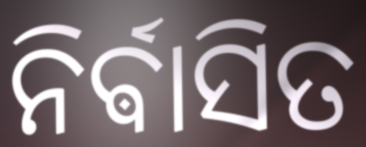
ନିର୍ଵାସିତ